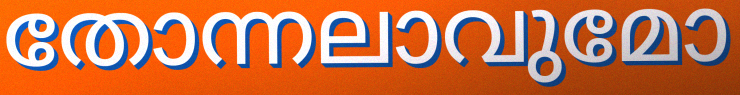
തോന്നലാവുമോ